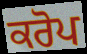
ਕਰੋਪ